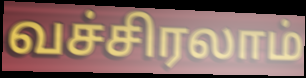
வச்சிரலாம்